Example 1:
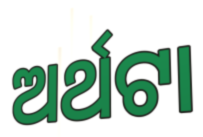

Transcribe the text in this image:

ଅର୍ଥଟା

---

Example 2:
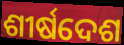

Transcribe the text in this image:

ଶୀର୍ଷଦେଶ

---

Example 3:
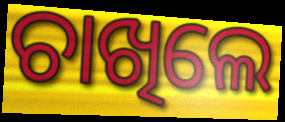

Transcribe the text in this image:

ଚାଖିଲେ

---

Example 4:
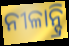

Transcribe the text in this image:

ନୀଳାନ୍ଦ୍ରି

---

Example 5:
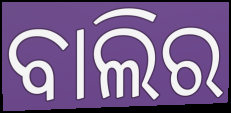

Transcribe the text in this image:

ବାଲିର